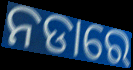
ନଡାରେ